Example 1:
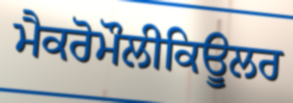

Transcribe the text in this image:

ਮੈਕਰੋਮੌਲੀਕਿਊਲਰ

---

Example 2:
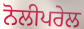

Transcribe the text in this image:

ਨੋਲੀਪਰੇਲ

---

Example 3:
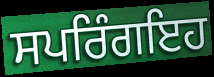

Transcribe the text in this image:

ਸਪਰਿੰਗਇਹ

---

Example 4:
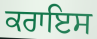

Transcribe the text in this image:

ਕਰਾਇਸ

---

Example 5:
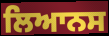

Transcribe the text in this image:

ਲਿਆਨਸ